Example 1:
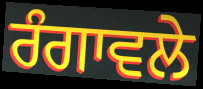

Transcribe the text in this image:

ਰੰਗਾਵਲੇ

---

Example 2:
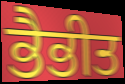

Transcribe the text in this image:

ਭੈਭੀਤ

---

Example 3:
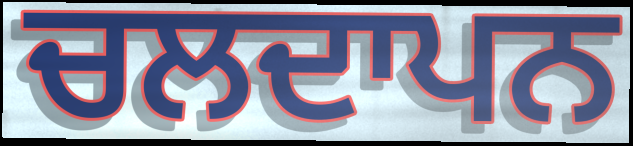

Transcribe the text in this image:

ਚਲਦਾਪਨ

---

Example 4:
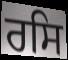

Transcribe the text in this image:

ਰਸਿ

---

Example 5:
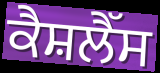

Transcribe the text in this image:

ਕੈਸ਼ਲੈੱਸ